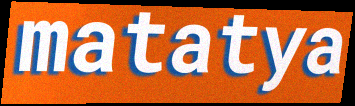
matatya